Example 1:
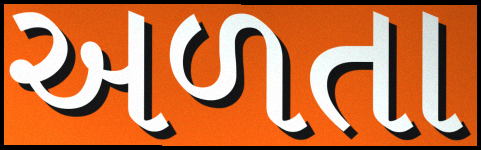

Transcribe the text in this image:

અળતા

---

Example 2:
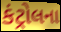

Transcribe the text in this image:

કંટ્રોલના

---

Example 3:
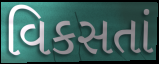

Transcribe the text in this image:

વિકસતાં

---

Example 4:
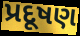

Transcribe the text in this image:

પ્રદૂષણ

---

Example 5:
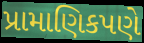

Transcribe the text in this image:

પ્રામાણિકપણે